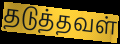
தடுத்தவள்